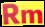
Rm